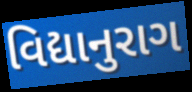
વિદ્યાનુરાગ